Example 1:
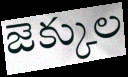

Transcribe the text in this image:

జెక్కుల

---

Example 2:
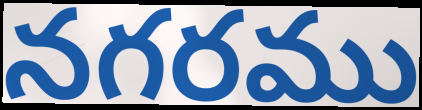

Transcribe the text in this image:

నగరము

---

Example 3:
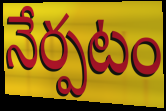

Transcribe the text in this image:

నేర్పటం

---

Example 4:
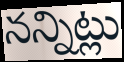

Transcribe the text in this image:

నన్నిట్లు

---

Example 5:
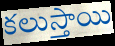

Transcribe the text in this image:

కలుస్తాయి